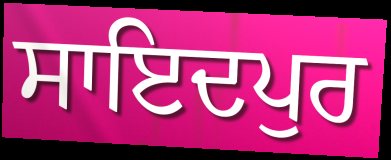
ਸਾਇਦਪੁਰ